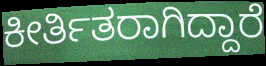
ಕೀರ್ತಿತರಾಗಿದ್ದಾರೆ